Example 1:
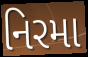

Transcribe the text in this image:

નિરમા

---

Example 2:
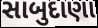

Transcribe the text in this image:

સાબુદાણા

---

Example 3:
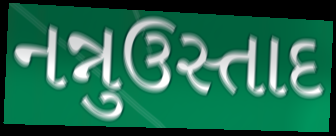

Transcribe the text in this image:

નન્નુઉસ્તાદ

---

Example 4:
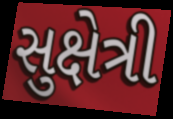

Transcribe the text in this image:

સુક્ષેત્રી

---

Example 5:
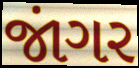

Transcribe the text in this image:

જાંગર